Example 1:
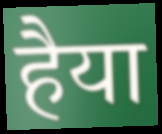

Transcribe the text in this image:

हैया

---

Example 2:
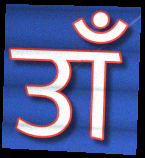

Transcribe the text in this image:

उाँ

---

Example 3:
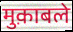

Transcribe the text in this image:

मुक़ाबले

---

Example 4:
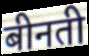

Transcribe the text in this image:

बीनती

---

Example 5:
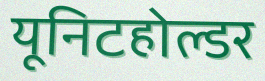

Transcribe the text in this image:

यूनिटहोल्डर